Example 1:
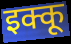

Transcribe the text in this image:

इक्कू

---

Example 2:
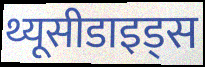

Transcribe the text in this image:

थ्यूसीडाइड्स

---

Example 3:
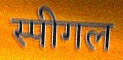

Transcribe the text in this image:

स्पीगल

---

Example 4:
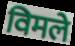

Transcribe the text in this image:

विमले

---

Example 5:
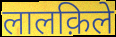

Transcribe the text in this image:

लालक़िले